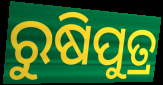
ରୁଷିପୁତ୍ର